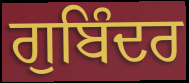
ਗੁਬਿੰਦਰ